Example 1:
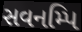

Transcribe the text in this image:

સવનમ્પિ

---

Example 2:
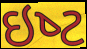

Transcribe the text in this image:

ઇષ્‍ટ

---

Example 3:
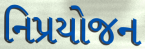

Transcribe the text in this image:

નિપ્રયોજન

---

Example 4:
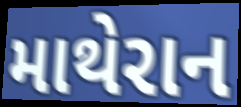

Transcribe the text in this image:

માથેરાન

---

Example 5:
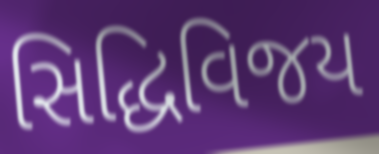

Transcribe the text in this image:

સિદ્ધિવિજય